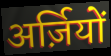
अर्ज़ियों